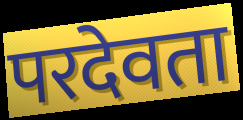
परदेवता